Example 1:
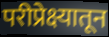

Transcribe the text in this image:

परीप्रेक्ष्यातून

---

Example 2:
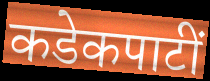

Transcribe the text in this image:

कडेकपाटीं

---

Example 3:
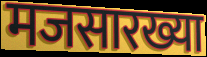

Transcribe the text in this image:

मजसारख्या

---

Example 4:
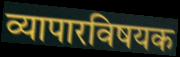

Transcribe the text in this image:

व्यापारविषयक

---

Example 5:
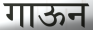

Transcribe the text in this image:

गाऊन